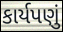
કાર્યપણું